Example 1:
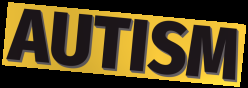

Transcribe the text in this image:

AUTISM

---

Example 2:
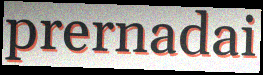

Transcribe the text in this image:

prernadai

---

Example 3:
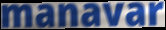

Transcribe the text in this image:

manavar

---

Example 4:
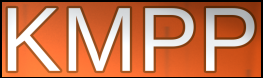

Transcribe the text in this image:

KMPP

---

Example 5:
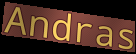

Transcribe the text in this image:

Andras